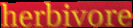
herbivore